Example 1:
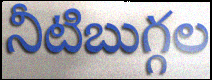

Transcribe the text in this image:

నీటిబుగ్గల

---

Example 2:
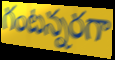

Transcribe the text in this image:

గంటన్నరగా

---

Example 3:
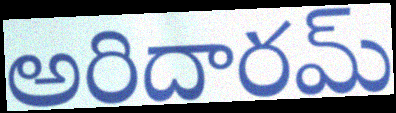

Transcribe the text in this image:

అరిదారమ్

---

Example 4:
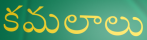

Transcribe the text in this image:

కమలాలు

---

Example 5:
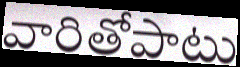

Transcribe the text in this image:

వారితోపాటు